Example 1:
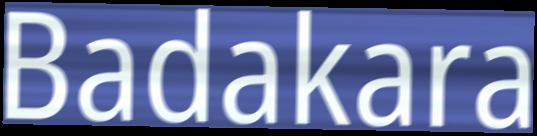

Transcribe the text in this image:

Badakara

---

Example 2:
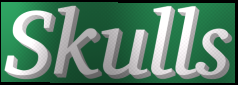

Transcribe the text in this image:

Skulls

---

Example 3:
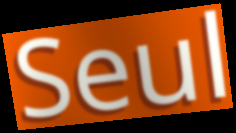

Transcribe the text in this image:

Seul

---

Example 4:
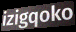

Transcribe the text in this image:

izigqoko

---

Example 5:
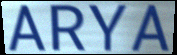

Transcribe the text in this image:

ARYA